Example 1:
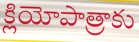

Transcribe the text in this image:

క్లియోపాత్రాకు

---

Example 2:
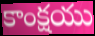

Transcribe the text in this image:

కాంక్షయు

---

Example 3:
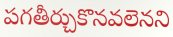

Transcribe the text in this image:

పగతీర్చుకొనవలెనని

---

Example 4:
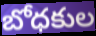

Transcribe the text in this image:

బోధకుల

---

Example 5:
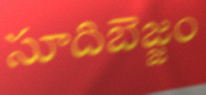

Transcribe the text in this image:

సూదిబెజ్జం